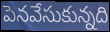
పెనవేసుకున్నది